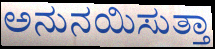
ಅನುನಯಿಸುತ್ತಾ